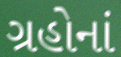
ગ્રહોનાં